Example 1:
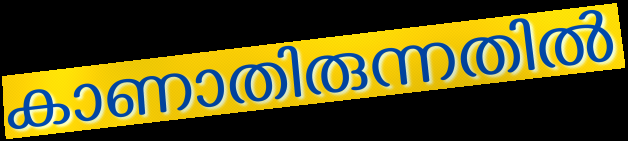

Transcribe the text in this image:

കാണാതിരുന്നതിൽ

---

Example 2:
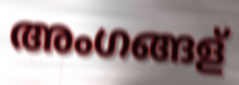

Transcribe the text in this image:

അംഗങ്ങള്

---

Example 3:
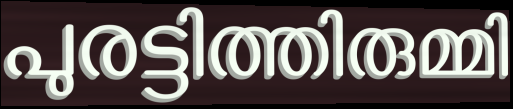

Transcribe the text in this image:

പുരട്ടിത്തിരുമ്മി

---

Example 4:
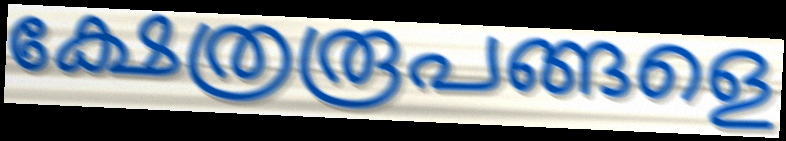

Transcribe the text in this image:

ക്ഷേത്രരൂപങ്ങളെ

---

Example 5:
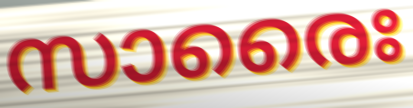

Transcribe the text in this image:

സാരൈഃ